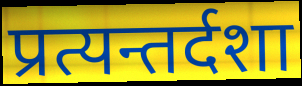
प्रत्यन्तर्दशा